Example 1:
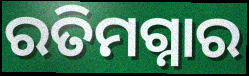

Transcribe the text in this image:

ରତିମଗ୍ନାର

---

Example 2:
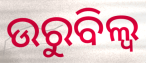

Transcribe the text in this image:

ଉରୁବିଲ୍ୱ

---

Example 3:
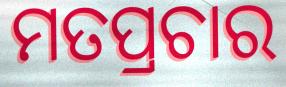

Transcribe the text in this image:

ମତପ୍ରଚାର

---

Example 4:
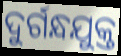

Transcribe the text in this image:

ଦୁର୍ଗନ୍ଧଯୁକ୍ତ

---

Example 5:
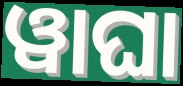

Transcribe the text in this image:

ୱାଘା